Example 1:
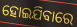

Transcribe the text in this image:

ହୋଇଯିବାରେ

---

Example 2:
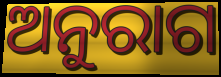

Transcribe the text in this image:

ଅନୁରାଗ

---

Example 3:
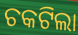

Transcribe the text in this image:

ଚକଟିଲା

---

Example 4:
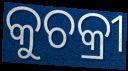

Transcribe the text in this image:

କୁଚକ୍ରୀ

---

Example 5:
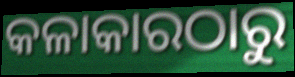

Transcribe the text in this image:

କଳାକାରଠାରୁ